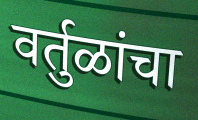
वर्तुळांचा